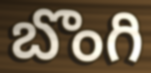
బొంగి